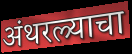
अंथरल्याचा